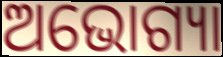
ଅଭୋଗ୍ୟା